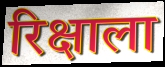
रिक्षाला